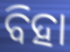
ବିହା